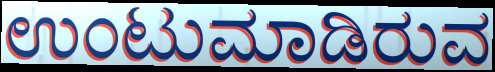
ಉಂಟುಮಾಡಿರುವ